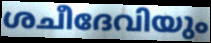
ശചീദേവിയും